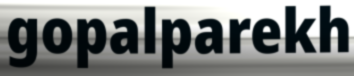
gopalparekh